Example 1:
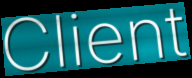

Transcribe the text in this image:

Client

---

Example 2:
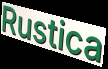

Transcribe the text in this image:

Rustica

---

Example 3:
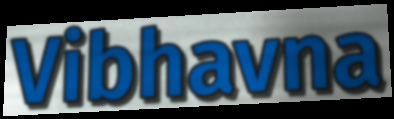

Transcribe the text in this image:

Vibhavna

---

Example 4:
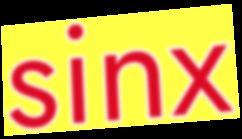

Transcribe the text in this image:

sinx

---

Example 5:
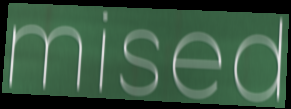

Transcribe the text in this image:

mised